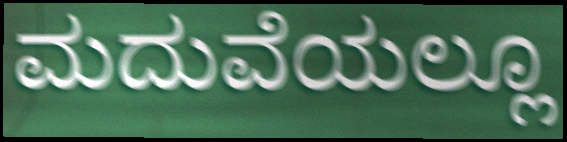
ಮದುವೆಯಲ್ಲೂ